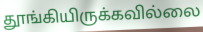
தூங்கியிருக்கவில்லை